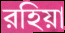
রহিয়া